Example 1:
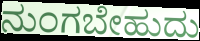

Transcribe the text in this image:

ನುಂಗಬೇಹುದು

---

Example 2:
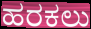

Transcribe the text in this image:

ಹರಕಲು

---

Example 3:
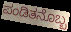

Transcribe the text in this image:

ಪಂಡಿತನೊಬ್ಬ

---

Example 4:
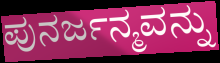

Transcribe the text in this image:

ಪುನರ್ಜನ್ಮವನ್ನು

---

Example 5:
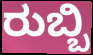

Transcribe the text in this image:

ರುಬ್ಬಿ